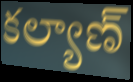
కల్యాణ్